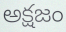
అక్షజం